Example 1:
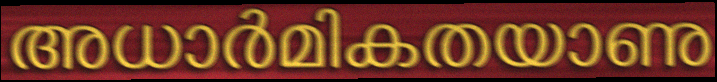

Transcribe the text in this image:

അധാർമികതയാണു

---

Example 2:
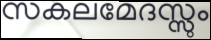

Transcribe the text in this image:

സകലമേദസ്സും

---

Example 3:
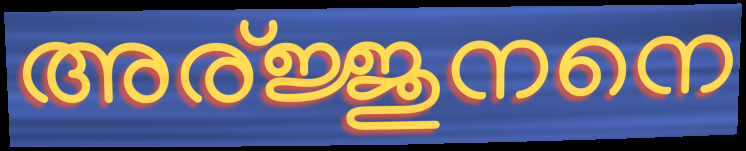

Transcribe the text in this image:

അര്ജ്ജുനനെ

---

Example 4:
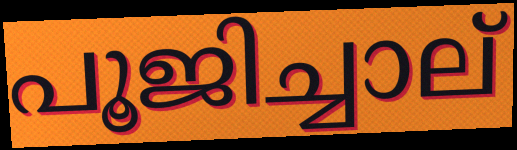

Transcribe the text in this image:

പൂജിച്ചാല്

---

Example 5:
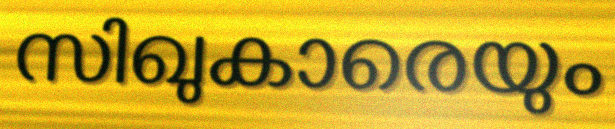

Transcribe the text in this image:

സിഖുകാരെയും